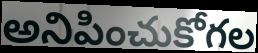
అనిపించుకోగల